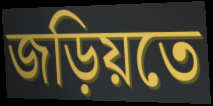
জড়িয়তে